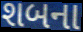
શબના